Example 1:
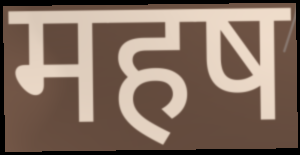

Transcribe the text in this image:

महष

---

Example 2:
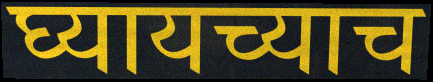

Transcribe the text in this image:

घ्यायच्याच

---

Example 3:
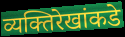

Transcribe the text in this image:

व्यक्तिरेखांकडे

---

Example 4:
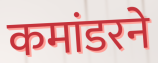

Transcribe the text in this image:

कमांडरने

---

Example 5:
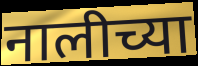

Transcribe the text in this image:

नालीच्या